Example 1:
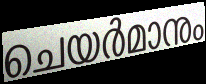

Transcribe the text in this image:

ചെയർമാനും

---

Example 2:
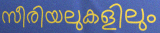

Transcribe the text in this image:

സീരിയലുകളിലും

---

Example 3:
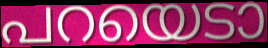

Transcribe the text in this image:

പറയെടാ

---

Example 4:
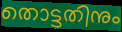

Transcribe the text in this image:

തൊട്ടതിനും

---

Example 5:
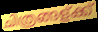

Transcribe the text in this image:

ചിത്രങ്ങള്ക്ക്